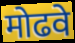
मोढवे